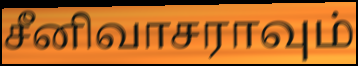
சீனிவாசராவும்